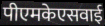
पीएमकेएसवाई